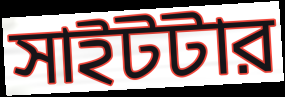
সাইটটার